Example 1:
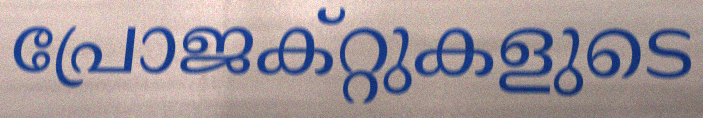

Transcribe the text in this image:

പ്രോജക്റ്റുകളുടെ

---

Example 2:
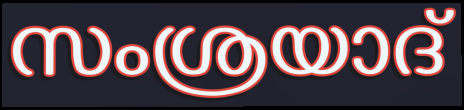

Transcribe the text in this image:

സംശ്രയാദ്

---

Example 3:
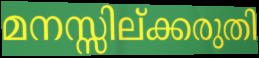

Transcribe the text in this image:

മനസ്സില്ക്കരുതി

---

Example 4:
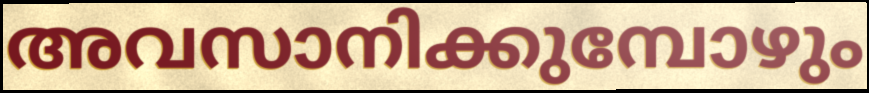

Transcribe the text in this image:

അവസാനിക്കുമ്പോഴും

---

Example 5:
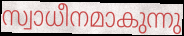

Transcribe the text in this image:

സ്വാധീനമാകുന്നു